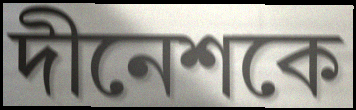
দীনেশকে